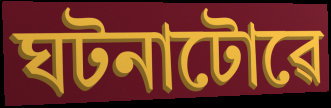
ঘটনাটোৱে